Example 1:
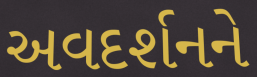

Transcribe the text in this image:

અવદર્શનને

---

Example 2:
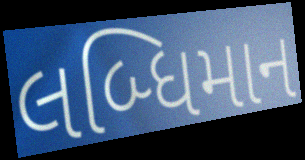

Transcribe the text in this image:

લબ્ધિમાન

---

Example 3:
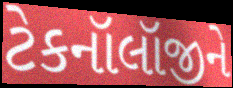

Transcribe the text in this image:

ટેકનૉલૉજીને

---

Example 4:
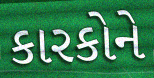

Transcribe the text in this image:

કારકોને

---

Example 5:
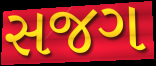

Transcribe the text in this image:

સજગ